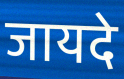
जायदे